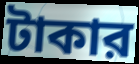
টাকার